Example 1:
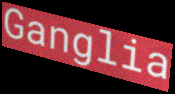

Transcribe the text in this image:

Ganglia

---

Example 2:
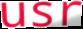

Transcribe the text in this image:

usr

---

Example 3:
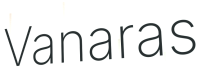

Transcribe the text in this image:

Vanaras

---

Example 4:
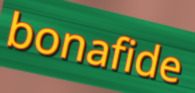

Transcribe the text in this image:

bonafide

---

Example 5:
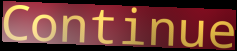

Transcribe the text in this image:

Continue